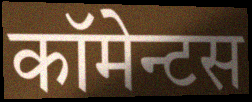
कॉमेन्टस